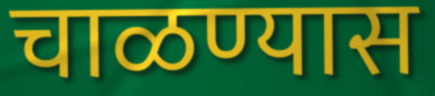
चाळण्यास